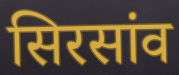
सिरसांव